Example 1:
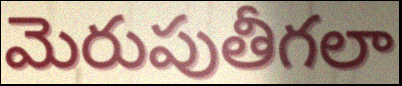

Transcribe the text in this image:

మెరుపుతీగలా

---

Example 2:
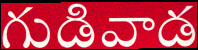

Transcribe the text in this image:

గుడివాడ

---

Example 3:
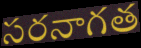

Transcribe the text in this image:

సరనాగత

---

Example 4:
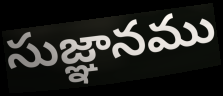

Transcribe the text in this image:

సుజ్ఞానము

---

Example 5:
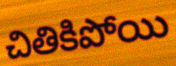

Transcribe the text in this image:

చితికిపోయి